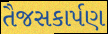
તૈજસકાર્પણ